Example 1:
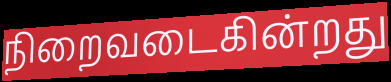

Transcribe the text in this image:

நிறைவடைகின்றது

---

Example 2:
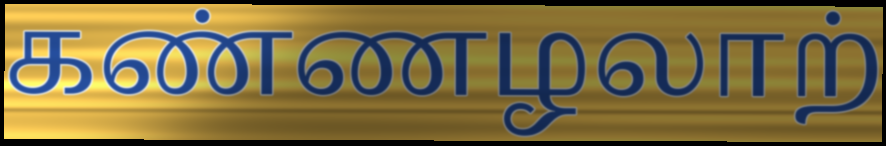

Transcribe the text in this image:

கண்ணழலாற்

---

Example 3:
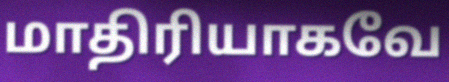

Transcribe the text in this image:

மாதிரியாகவே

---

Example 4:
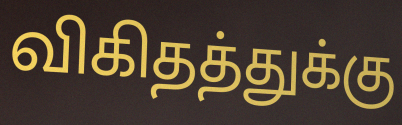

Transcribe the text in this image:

விகிதத்துக்கு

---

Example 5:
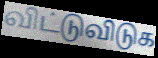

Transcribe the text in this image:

விட்டுவிடுக